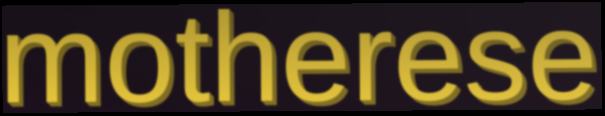
motherese